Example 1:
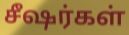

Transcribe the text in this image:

சீஷர்கள்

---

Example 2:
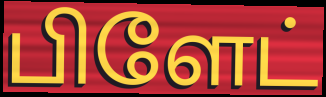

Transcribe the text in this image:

பிளேட்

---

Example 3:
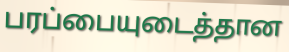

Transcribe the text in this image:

பரப்பையுடைத்தான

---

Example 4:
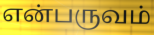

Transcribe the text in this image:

என்பருவம்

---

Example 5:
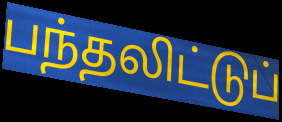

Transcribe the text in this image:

பந்தலிட்டுப்